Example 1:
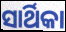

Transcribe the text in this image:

ସାର୍ଥିକା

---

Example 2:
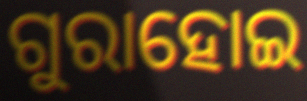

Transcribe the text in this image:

ଗୁରାହୋଇ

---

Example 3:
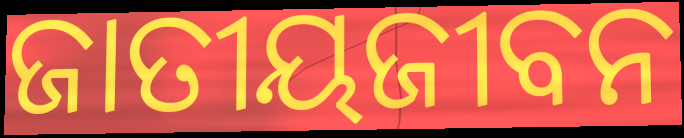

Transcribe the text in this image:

ଜାତୀୟଜୀବନ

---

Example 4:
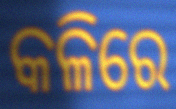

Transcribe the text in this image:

କଳିରେ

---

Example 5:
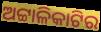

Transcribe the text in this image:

ଅଟ୍ଟାଳିକାଟିର